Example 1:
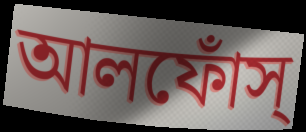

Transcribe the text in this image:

আলফোঁস্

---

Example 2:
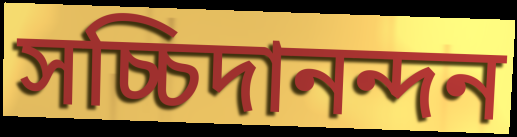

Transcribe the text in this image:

সচ্চিদানন্দন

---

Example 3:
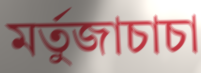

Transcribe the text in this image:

মর্তুজাচাচা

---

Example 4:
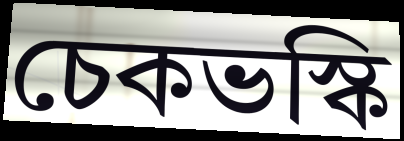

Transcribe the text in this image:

চেকভস্কি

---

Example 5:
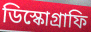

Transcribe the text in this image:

ডিস্কোগ্রাফি